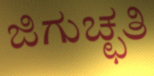
ಜಿಗುಚ್ಛತಿ